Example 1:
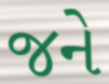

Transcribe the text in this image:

જને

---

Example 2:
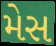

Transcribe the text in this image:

મેસ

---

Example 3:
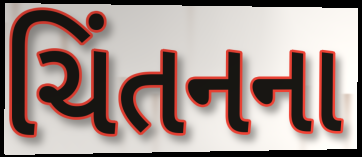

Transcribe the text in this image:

ચિંતનના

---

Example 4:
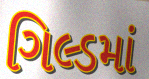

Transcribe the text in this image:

ગિલ્ડમાં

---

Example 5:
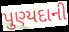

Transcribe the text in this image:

પુણ્યદાની